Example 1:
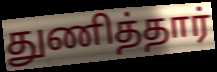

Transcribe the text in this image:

துணித்தார்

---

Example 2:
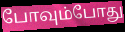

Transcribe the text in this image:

போவும்போது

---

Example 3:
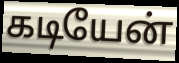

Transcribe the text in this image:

கடியேன்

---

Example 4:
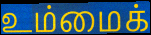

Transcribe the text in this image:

உம்மைக்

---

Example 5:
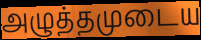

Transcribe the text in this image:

அழுத்தமுடைய